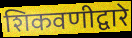
शिकवणीद्वारे